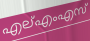
എല്എംഎസ്